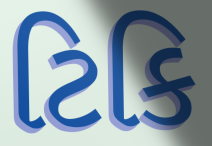
ટિકિ